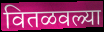
वितळवल्या